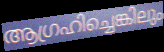
ആഗ്രഹിച്ചെങ്കിലും